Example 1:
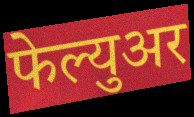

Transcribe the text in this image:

फेल्युअर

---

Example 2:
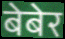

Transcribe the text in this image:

बेबेर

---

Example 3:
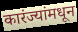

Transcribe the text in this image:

कारंज्यांमधून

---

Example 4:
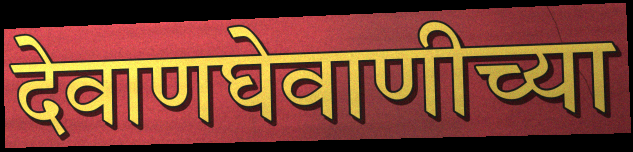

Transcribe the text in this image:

देवाणघेवाणीच्या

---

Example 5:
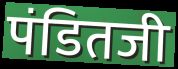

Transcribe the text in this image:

पंडितजी